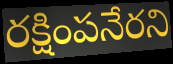
రక్షింపనేరని